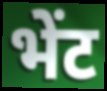
भेंट